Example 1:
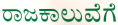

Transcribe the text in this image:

ರಾಜಕಾಲುವೆಗೆ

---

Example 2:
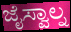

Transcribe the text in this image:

ಜೈಸ್ವಾಲ್ನ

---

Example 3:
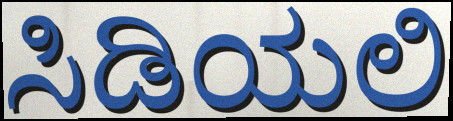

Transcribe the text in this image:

ಸಿಡಿಯಲಿ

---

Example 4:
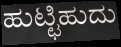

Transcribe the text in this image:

ಹುಟ್ಟಿಹುದು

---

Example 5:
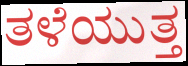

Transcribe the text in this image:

ತಳೆಯುತ್ತ